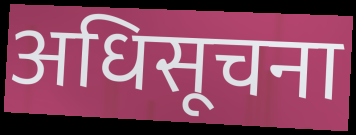
अधिसूचना